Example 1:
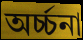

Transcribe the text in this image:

অর্চ্চনা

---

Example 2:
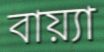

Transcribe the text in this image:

বায়্যা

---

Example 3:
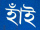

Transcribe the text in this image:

হাঁই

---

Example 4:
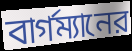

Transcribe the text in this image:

বার্গম্যানের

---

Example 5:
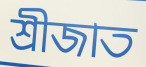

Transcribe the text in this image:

শ্রীজাত